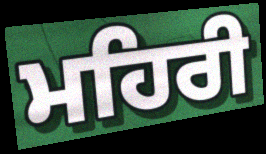
ਮਹਿਰੀ